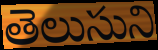
తెలుసుని